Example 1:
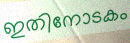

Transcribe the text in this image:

ഇതിനോടകം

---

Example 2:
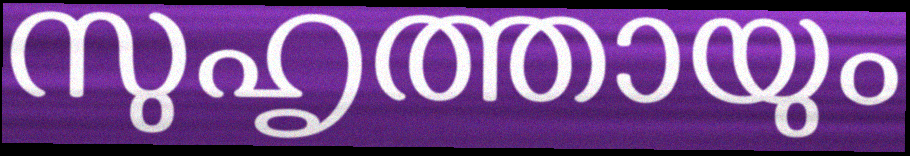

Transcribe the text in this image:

സുഹൃത്തായും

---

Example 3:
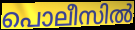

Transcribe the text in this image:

പൊലീസിൽ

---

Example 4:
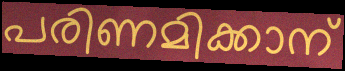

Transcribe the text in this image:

പരിണമിക്കാന്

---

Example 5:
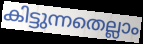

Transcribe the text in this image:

കിട്ടുന്നതെല്ലാം